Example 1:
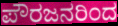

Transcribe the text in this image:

ಪೌರಜನರಿಂದ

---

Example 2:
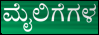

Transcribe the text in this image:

ಮೈಲಿಗೆಗಳ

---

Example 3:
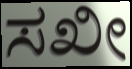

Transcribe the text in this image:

ಸಖೀ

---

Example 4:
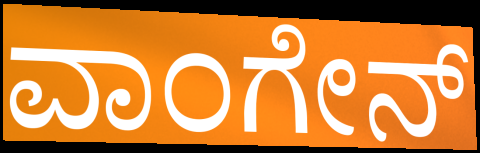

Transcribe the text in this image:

ವಾಂಗೇನ್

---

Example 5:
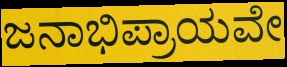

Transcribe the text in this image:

ಜನಾಭಿಪ್ರಾಯವೇ